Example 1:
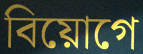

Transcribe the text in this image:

বিয়োগে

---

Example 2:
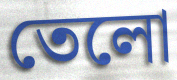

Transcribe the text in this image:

তেলো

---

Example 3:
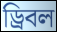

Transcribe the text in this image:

ড্রিবল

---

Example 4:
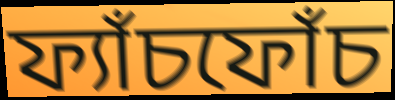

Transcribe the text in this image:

ফ্যাঁচফোঁচ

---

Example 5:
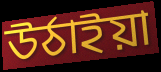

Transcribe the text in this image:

উঠাইয়া